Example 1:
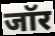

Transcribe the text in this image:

जॉर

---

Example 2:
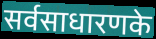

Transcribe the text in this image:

सर्वसाधारणके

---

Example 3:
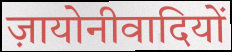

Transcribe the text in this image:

ज़ायोनीवादियों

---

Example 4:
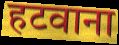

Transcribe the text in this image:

हटवाना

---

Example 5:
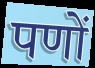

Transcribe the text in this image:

पणों